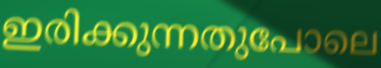
ഇരിക്കുന്നതുപോലെ